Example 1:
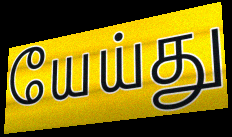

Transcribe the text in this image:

யேய்து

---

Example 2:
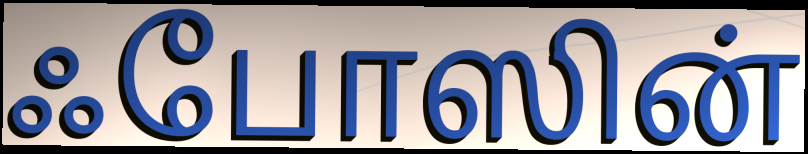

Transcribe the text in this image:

ஃபோஸின்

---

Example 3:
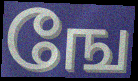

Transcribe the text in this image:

ஙே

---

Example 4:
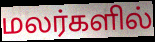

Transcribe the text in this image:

மலர்களில்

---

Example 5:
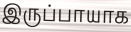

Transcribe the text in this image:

இருப்பாயாக